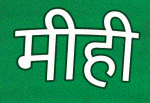
मीही